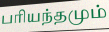
பரியந்தமும்